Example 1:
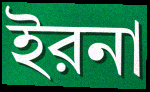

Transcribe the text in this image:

ইরনা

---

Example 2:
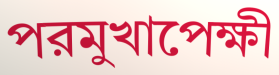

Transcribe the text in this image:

পরমুখাপেক্ষী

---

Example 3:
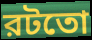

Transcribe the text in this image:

রটতো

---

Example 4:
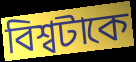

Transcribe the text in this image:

বিশ্বটাকে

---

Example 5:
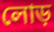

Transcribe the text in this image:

লোড়